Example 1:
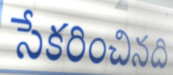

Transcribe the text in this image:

సేకరించినది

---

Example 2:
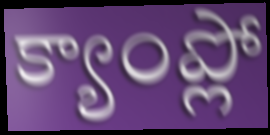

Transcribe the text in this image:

క్యాంప్లో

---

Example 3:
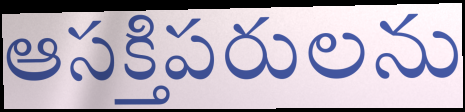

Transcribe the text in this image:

ఆసక్తిపరులను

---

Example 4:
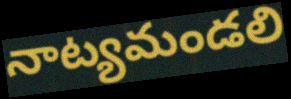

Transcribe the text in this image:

నాట్యమండలి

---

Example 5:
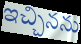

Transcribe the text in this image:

ఇచ్చినను